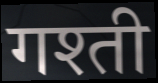
गश्ती